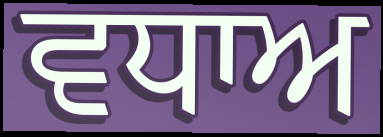
ਵਧਾਅ